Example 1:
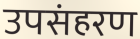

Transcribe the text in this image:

उपसंहरण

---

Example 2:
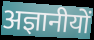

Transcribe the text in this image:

अज्ञानीयों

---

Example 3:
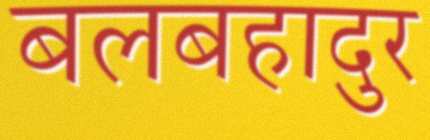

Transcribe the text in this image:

बलबहादुर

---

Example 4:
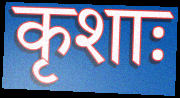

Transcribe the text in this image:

कृशाः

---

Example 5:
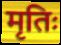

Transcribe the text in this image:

मृतिः